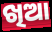
ଖିଆ